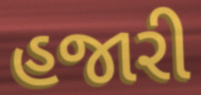
હજારી